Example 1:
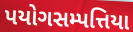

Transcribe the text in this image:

પયોગસમ્પત્તિયા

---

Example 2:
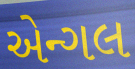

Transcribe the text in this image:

એન્ગલ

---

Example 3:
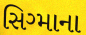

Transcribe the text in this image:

સિગ્માના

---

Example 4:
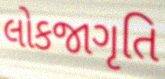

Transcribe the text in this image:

લોકજાગૃતિ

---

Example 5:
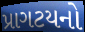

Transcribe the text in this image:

પ્રાગટયનો